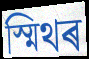
স্মিথৰ